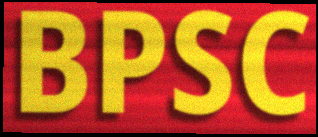
BPSC